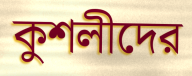
কুশলীদের